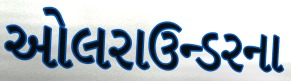
ઓલરાઉન્ડરના